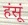
हंसूं